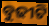
ବୁଢୀଟି